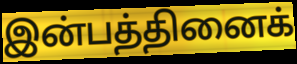
இன்பத்தினைக்